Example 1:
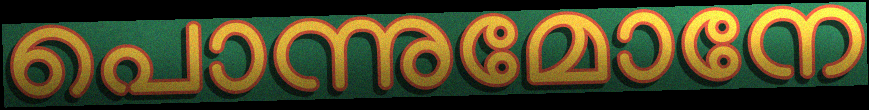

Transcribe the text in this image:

പൊന്നുമോനേ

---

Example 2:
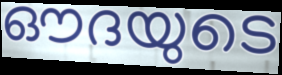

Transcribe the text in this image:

ഔദയുടെ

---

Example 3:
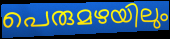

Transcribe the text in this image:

പെരുമഴയിലും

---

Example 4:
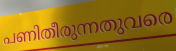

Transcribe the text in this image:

പണിതീരുന്നതുവരെ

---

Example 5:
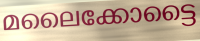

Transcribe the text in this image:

മലൈക്കോട്ടൈ